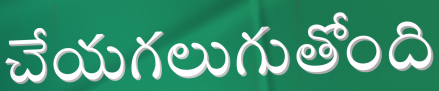
చేయగలుగుతోంది